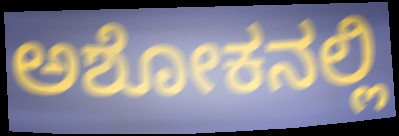
ಅಶೋಕನಲ್ಲಿ